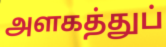
அளகத்துப்